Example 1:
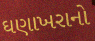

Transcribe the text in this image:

ઘણાખરાનો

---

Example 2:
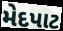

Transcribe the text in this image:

મેદપાટ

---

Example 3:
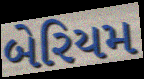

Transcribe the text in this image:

બેરિયમ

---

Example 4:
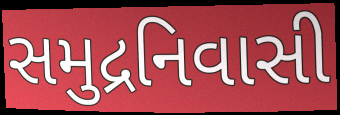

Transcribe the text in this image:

સમુદ્રનિવાસી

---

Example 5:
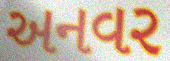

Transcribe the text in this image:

અનવર